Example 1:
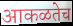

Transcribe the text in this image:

आकळतेच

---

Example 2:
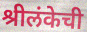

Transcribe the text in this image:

श्रीलंकेची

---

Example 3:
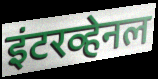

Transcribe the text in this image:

इंटरव्हेनल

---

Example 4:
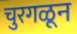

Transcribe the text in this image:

चुरगळून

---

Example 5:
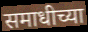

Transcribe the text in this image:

समाधीच्या